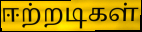
ஈற்றடிகள்